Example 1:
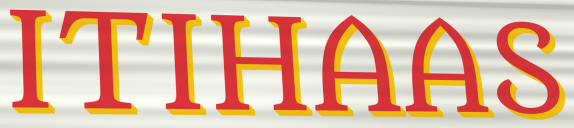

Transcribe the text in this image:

ITIHAAS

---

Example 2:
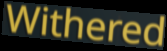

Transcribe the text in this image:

Withered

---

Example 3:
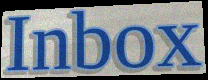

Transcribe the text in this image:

Inbox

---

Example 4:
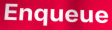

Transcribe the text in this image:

Enqueue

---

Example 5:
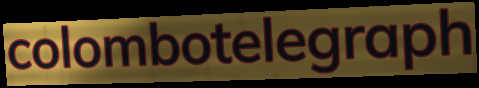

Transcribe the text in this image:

colombotelegraph